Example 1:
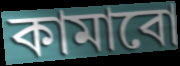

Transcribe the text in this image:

কামাবো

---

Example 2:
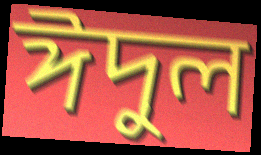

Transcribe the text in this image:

ঈদুল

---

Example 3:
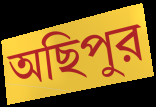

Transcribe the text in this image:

অছিপুর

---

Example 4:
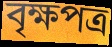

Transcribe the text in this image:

বৃক্ষপত্র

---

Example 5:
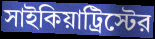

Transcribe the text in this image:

সাইকিয়াট্রিস্টের